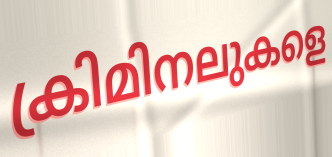
ക്രിമിനലുകളെ